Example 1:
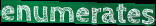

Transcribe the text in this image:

enumerates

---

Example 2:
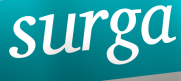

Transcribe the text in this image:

surga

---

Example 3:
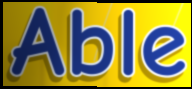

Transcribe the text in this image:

Able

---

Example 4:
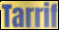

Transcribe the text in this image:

Tarrif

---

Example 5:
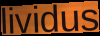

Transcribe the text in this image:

lividus